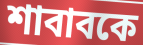
শাবাবকে